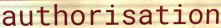
authorisation